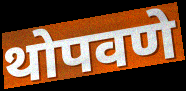
थोपवणे